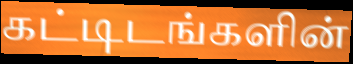
கட்டிடங்களின்